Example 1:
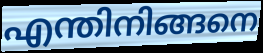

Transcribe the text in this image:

എന്തിനിങ്ങനെ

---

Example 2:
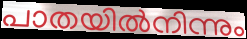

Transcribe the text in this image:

പാതയിൽനിന്നും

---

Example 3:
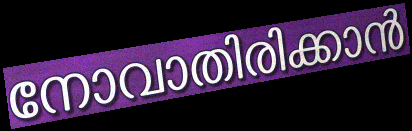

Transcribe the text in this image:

നോവാതിരിക്കാൻ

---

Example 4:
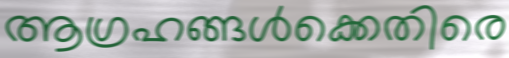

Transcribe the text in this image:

ആഗ്രഹങ്ങൾക്കെതിരെ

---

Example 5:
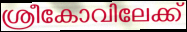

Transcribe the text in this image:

ശ്രീകോവിലേക്ക്